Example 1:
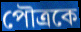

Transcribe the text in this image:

পৌত্রকে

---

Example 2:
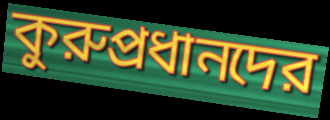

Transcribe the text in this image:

কুরুপ্রধানদের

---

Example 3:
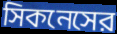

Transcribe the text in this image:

সিকনেসের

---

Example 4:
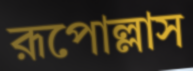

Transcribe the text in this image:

রূপোল্লাস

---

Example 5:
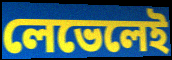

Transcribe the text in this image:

লেভেলেই